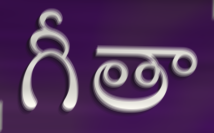
గీతా